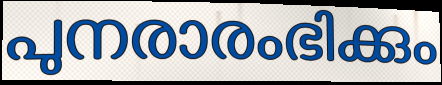
പുനരാരംഭിക്കും